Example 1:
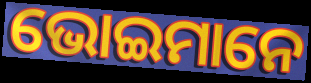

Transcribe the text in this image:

ଭୋଇମାନେ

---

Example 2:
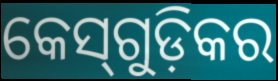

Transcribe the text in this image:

କେସ୍‌ଗୁଡ଼ିକର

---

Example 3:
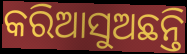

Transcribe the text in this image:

କରିଆସୁଅଛନ୍ତି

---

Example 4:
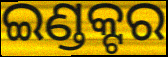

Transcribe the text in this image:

ଇଣ୍ଡକ୍ଟର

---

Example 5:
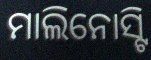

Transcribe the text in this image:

ମାଲିନୋସ୍ଟି